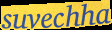
suvechha